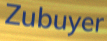
Zubuyer